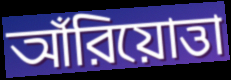
আঁরিয়োত্তা